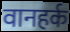
वानहर्क